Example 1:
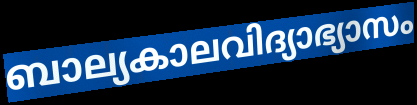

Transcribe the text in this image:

ബാല്യകാലവിദ്യാഭ്യാസം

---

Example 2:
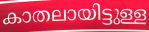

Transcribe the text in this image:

കാതലായിട്ടുള്ള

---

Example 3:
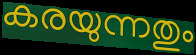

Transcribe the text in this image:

കരയുന്നതും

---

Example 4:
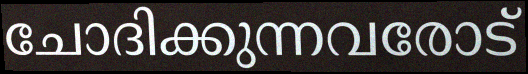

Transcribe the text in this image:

ചോദിക്കുന്നവരോട്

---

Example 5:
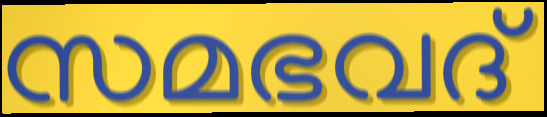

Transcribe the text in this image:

സമഭവദ്